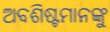
ଅବଶିଷ୍ଟମାନଙ୍କୁ